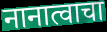
नानात्वाचा